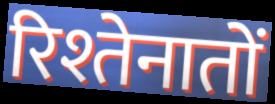
रिश्तेनातों